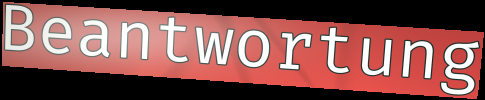
Beantwortung